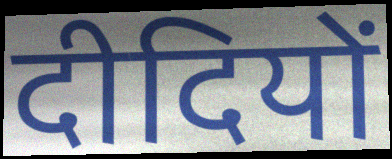
दीदियों